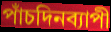
পাঁচদিনব্যাপী